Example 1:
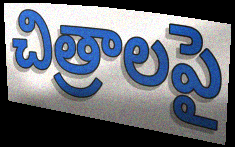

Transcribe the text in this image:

చిత్రాలపై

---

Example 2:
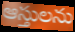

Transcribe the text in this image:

ఆస్తులను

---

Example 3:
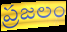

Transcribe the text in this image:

ప్రజలం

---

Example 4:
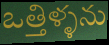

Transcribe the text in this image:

ఒత్తిళ్ళను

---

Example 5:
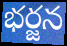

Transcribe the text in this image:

భర్జన